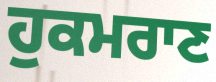
ਹੁਕਮਰਾਣ